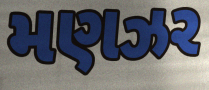
મણઝર